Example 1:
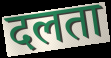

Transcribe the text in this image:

दलता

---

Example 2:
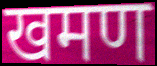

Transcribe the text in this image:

खमण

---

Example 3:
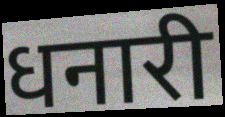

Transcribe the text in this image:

धनारी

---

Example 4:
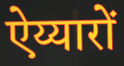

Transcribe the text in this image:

ऐय्यारों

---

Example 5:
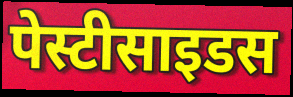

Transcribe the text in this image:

पेस्टीसाइडस